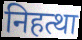
निहत्था